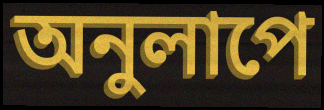
অনুলাপে